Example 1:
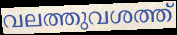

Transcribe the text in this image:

വലത്തുവശത്ത്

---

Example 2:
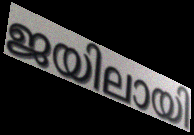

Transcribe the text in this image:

ജയിലായി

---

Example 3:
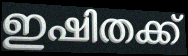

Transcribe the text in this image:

ഇഷിതക്ക്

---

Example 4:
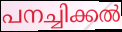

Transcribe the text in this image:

പനച്ചിക്കൽ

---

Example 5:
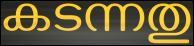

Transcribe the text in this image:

കടന്നതു